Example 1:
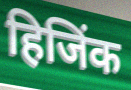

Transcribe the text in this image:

हिजिंक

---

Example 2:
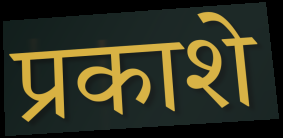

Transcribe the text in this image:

प्रकाशे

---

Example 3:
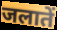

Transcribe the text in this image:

जलातें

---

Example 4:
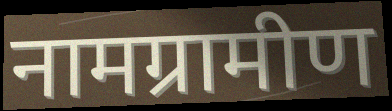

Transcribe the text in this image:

नामग्रामीण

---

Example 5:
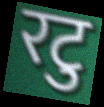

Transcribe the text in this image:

रटु